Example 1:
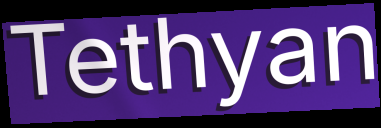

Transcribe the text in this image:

Tethyan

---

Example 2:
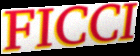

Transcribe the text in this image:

FICCI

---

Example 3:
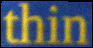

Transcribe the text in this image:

thin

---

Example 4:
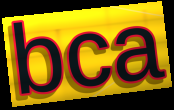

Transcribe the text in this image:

bca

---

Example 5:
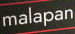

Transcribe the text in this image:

malapan